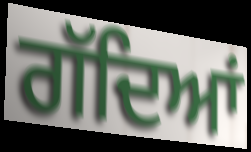
ਗੱਦਿਆਂ